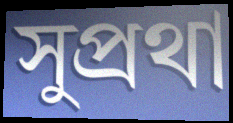
সুপ্রথা